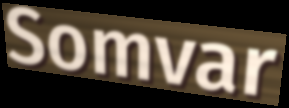
Somvar